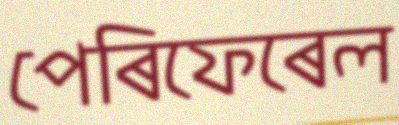
পেৰিফেৰেল